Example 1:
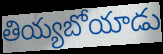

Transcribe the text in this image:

తియ్యబోయాడు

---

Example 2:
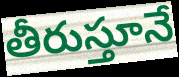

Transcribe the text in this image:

తీరుస్తూనే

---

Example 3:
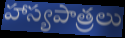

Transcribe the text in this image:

హాస్యపాత్రలు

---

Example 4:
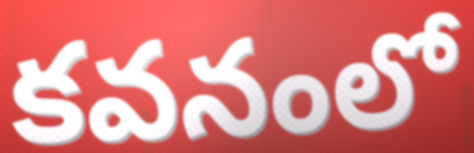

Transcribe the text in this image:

కవనంలో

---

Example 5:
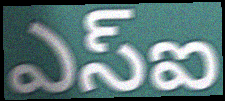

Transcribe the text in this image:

ఎస్ఐ